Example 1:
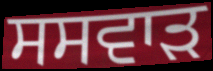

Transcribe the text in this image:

ਸਸਵਾੜ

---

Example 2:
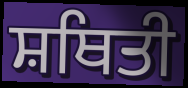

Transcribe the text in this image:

ਸ਼ਥਿਤੀ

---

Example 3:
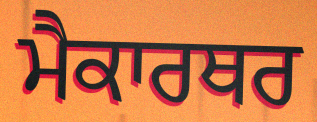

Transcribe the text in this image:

ਮੈਕਾਰਥਰ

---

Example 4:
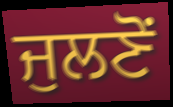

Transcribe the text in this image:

ਜੁਲਣੋਂ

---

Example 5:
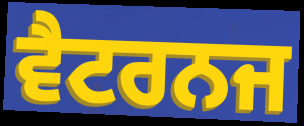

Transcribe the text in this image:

ਵੈਟਰਨਜ